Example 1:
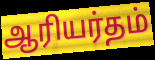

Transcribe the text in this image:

ஆரியர்தம்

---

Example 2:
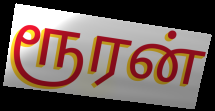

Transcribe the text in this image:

ரூரன்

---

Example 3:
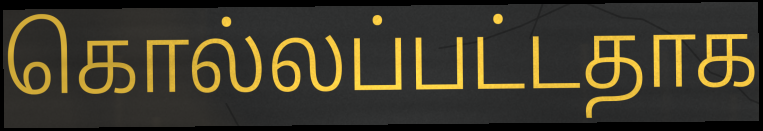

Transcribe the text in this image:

கொல்லப்பட்டதாக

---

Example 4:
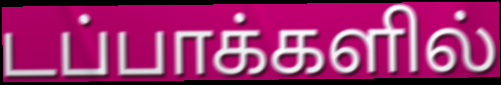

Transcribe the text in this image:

டப்பாக்களில்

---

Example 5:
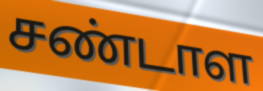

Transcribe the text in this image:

சண்டாள